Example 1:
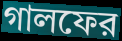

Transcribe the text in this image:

গালফের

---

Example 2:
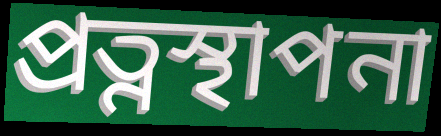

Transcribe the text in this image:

প্রত্নস্থাপনা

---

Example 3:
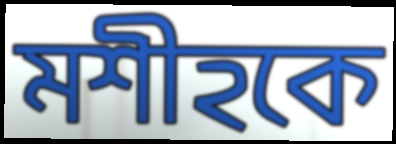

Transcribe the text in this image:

মশীহকে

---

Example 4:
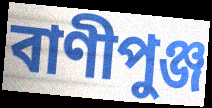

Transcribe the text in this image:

বাণীপুঞ্জ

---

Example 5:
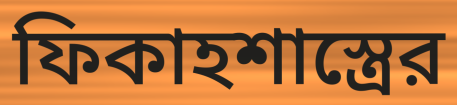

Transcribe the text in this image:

ফিকাহশাস্ত্রের